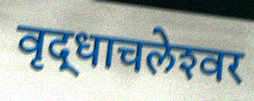
वृद्धाचलेश्वर